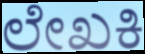
ಲೇಖಕಿ